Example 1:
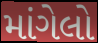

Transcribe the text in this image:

માંગેલો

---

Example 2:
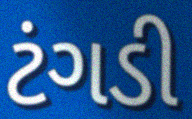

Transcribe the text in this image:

ટંગડી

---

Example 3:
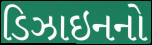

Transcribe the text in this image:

ડિઝાઇનનો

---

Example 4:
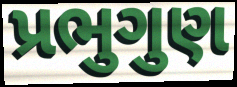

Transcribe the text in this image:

પ્રભુગુણ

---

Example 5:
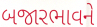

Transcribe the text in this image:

બજારભાવને